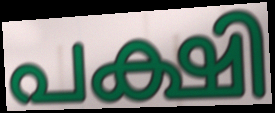
പക്ഷി